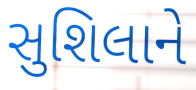
સુશિલાને